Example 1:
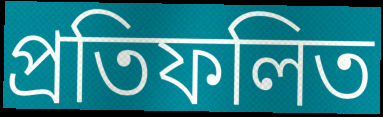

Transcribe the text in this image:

প্ৰতিফলিত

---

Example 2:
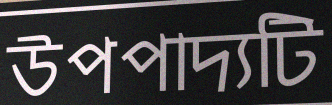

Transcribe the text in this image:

উপপাদ্যটি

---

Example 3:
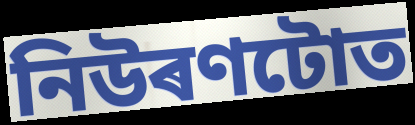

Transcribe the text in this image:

নিউৰণটোত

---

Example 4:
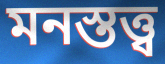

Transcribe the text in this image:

মনস্তত্ত্ব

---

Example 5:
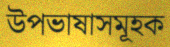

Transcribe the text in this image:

উপভাষাসমূহক